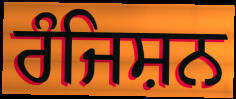
ਰੰਜਿਸ਼ਨ